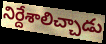
నిర్దేశాలిచ్చాడు